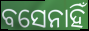
ବସେନାହିଁ